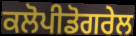
ਕਲੋਪੀਡੋਗਰੇਲ